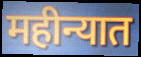
महीन्यात